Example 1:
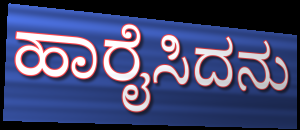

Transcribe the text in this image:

ಹಾರೈಸಿದನು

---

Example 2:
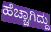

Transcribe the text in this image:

ಹೆಚ್ಚಾಗಿದ್ದು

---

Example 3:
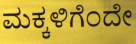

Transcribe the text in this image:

ಮಕ್ಕಳಿಗೆಂದೇ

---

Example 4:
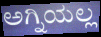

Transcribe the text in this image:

ಅಗ್ನಿಯಲ್ಲ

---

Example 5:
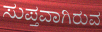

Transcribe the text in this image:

ಸುಪ್ತವಾಗಿರುವ